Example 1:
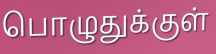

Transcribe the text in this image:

பொழுதுக்குள்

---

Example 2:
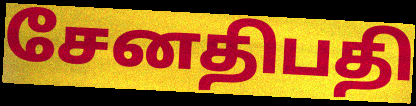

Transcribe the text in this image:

சேனதிபதி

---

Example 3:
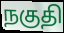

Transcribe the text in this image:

நகுதி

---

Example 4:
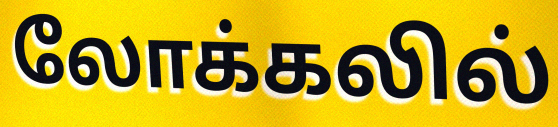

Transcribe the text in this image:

லோக்கலில்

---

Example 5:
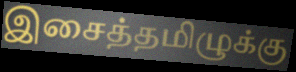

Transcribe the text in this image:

இசைத்தமிழுக்கு